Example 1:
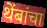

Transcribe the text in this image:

थेंबांचा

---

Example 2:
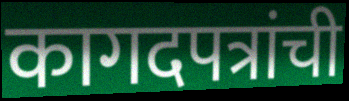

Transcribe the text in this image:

कागदपत्रांची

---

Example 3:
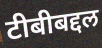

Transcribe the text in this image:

टीबीबद्दल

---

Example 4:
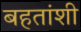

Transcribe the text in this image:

बहतांशी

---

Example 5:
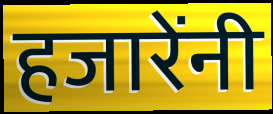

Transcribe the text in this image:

हजारेंनी